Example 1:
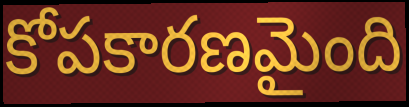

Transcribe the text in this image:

కోపకారణమైంది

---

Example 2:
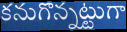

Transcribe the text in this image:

కనుగొన్నట్టుగా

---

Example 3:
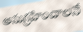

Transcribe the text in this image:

అనుగ్రహించాలనే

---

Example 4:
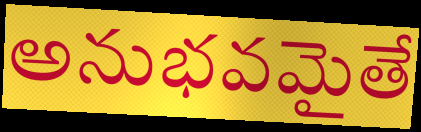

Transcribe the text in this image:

అనుభవమైతే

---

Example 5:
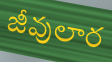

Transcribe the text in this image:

జీవులార